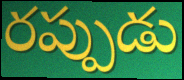
రప్పుడు